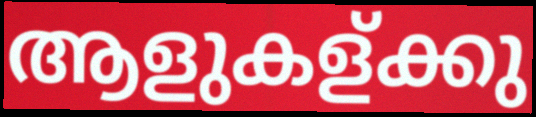
ആളുകള്ക്കു